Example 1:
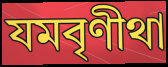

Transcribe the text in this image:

যমবৃণীথা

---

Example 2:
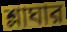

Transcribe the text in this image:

শ্লাঘার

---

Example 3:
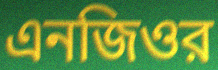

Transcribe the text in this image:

এনজিওর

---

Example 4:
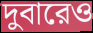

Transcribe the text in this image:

দুবারেও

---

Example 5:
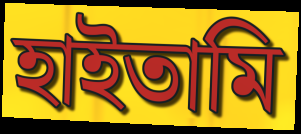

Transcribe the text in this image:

হাইতামি